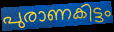
പുരാണകിട്ടം